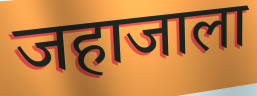
जहाजाला